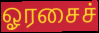
ஓரசைச்